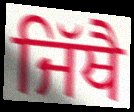
ਜਿੱਥੈ